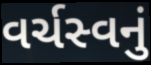
વર્ચસ્વનું